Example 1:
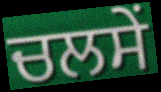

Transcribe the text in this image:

ਚਲਸੇਂ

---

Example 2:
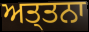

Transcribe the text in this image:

ਅਤ੍ਤਨਾ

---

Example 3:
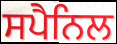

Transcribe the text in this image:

ਸਪੈਨਿਲ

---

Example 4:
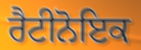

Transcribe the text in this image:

ਰੈਟੀਨੋਇਕ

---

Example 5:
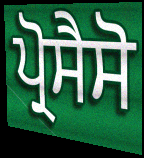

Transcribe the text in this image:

ਪ੍ਰੋਸੈਸੋ